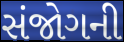
સંજોગની